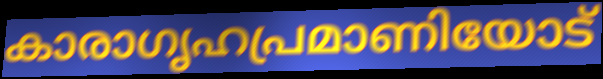
കാരാഗൃഹപ്രമാണിയോട്